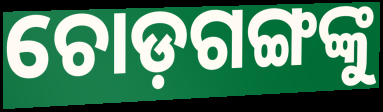
ଚୋଡ଼ଗଙ୍ଗଙ୍କୁ